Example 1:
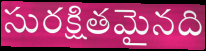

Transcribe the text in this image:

సురక్షితమైనది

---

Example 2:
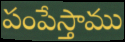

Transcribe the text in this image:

పంపేస్తాము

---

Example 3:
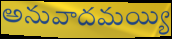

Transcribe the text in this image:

అనువాదమయ్యి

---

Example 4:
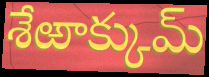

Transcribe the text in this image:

శేఱాక్కుమ్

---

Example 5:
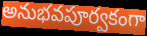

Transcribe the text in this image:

అనుభవపూర్వకంగా